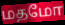
மதமோ